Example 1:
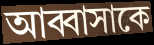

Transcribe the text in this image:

আব্বাসাকে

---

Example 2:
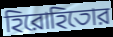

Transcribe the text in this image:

হিরোহিতোর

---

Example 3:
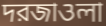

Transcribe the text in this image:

দরজাওলা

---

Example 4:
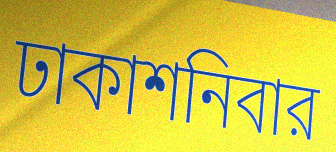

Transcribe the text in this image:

ঢাকাশনিবার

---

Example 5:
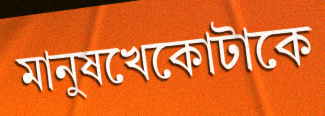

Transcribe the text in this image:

মানুষখেকোটাকে